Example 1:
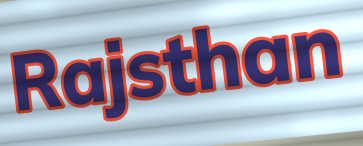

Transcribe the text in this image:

Rajsthan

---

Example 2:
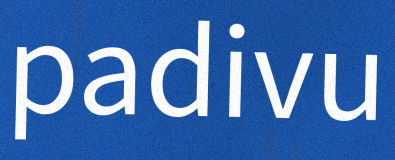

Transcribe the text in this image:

padivu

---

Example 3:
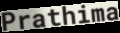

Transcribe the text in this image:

Prathima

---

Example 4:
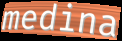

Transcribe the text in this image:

medina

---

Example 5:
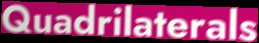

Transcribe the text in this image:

Quadrilaterals